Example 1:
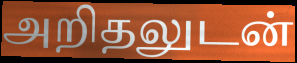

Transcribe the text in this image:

அறிதலுடன்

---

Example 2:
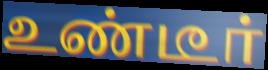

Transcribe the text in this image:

உண்டீர்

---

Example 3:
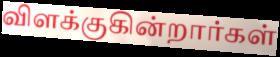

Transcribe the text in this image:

விளக்குகின்றார்கள்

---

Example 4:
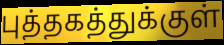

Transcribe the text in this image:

புத்தகத்துக்குள்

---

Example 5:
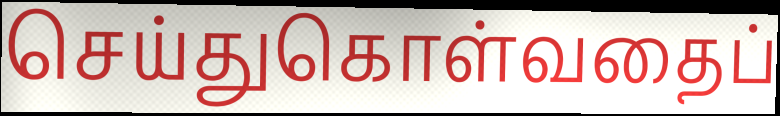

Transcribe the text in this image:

செய்துகொள்வதைப்